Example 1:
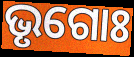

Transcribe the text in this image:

ଭୃଗୋଃ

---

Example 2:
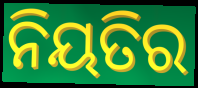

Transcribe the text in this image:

ନିୟତିର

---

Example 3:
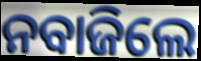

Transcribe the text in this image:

ନବାଜିଲେ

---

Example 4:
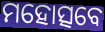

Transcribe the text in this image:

ମହୋତ୍ସବେ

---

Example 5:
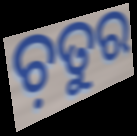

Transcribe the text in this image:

ଚ଼ତୁର